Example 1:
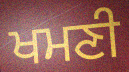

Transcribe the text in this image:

ਖਮਣੀ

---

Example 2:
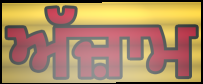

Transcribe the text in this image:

ਅੱਜ਼ਾਮ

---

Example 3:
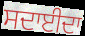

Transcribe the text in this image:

ਸਦਾਈਦਾ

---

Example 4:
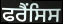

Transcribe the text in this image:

ਫਰੈਂਸਿਸ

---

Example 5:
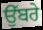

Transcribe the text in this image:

ਉੱਬਰੇ